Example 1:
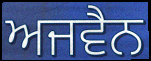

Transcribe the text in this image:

ਅਜਵੈਨ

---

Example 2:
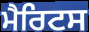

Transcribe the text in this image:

ਮੈਰਿਟਸ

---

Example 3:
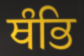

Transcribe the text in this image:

ਥੰਭਿ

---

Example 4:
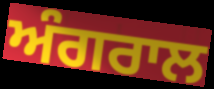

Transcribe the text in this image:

ਅੰਗਰਾਲ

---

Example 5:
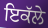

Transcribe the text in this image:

ਇਕੱਲੇ